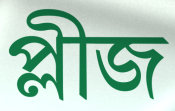
প্লীজ